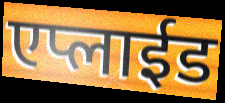
एप्लाईड